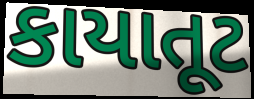
કાયાતૂટ